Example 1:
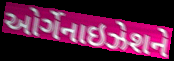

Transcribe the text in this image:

ઓર્ગેનાઇઝેશને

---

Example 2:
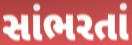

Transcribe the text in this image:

સાંભરતાં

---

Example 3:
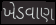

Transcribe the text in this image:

ખેડવાણ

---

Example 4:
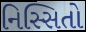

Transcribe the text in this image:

નિસ્સિતો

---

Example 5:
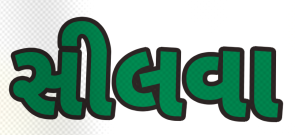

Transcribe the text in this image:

સીલવા